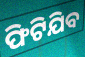
ଫିଟିଯିବ